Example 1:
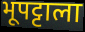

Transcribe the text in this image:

भूपट्टाला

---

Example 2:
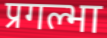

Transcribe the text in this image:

प्रगल्भा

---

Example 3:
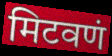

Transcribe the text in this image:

मिटवणं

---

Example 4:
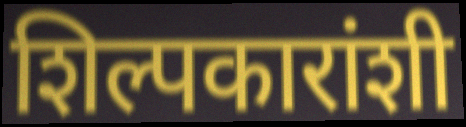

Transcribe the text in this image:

शिल्पकारांशी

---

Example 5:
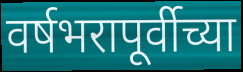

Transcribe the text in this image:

वर्षभरापूर्वीच्या